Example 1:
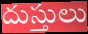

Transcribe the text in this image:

దుస్తులు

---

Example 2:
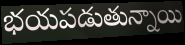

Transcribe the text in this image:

భయపడుతున్నాయి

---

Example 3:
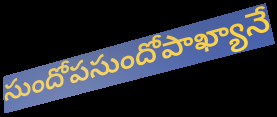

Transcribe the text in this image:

సుందోపసుందోపాఖ్యానే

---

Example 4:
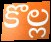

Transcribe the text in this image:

కొల్ల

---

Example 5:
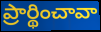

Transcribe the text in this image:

ప్రార్థించావా